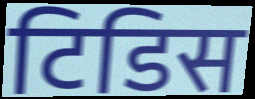
टिडिस